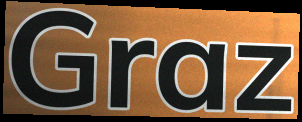
Graz